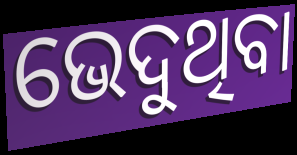
ଭେଦୁଥିବା